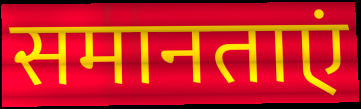
समानताएं